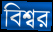
বিশ্বর